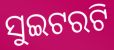
ସୁଇଟରଟି